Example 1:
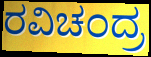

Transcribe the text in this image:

ರವಿಚಂದ್ರ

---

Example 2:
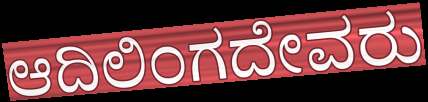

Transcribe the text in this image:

ಆದಿಲಿಂಗದೇವರು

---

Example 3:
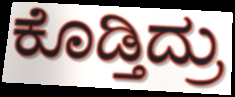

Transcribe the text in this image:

ಕೊಡ್ತಿದ್ರು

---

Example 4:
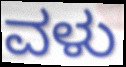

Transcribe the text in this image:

ವಳು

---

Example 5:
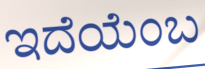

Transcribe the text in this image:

ಇದೆಯೆಂಬ